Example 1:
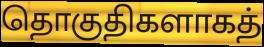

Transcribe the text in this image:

தொகுதிகளாகத்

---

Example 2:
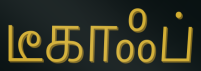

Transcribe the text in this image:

டீகாஃப்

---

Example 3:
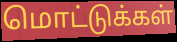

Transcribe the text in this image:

மொட்டுக்கள்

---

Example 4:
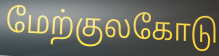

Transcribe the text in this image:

மேற்குலகோடு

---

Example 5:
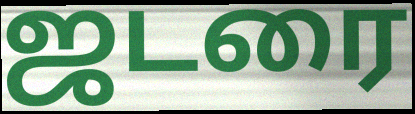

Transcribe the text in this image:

ஜடரை